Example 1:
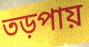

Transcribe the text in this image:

তড়পায়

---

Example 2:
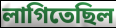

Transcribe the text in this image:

লাগিতেছিল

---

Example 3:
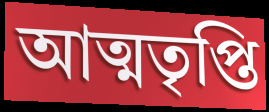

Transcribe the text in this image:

আত্মতৃপ্তি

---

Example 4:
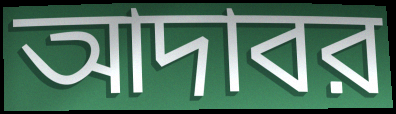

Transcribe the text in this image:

আদাবর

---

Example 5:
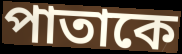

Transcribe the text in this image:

পাতাকে